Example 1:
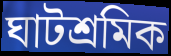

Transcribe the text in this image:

ঘাটশ্রমিক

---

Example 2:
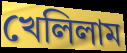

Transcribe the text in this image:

খেলিলাম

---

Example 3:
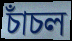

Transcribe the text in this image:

চাঁচল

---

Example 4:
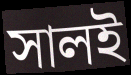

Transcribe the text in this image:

সালই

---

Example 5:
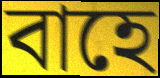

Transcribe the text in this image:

বাহে